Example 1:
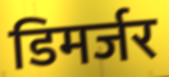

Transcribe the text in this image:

डिमर्जर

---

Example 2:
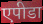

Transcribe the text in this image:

एपीडा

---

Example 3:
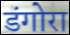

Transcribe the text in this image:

डंगोरा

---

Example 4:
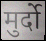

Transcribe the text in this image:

मुर्दो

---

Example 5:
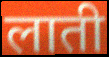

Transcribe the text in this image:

लाती